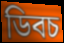
ডিবচ